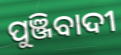
ପୁଞ୍ଜିବାଦୀ